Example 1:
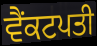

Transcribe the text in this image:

ਵੈਂਕਟਪਤੀ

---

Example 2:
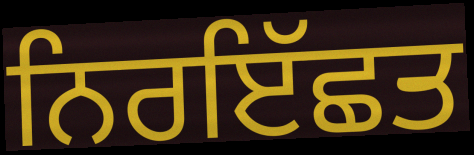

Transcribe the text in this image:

ਨਿਰਇੱਛਤ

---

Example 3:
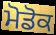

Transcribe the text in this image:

ਮੋਡੋਕ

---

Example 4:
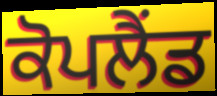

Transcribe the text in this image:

ਕੋਪਲੈਂਡ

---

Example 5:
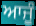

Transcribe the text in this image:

ਆਜੂੰ